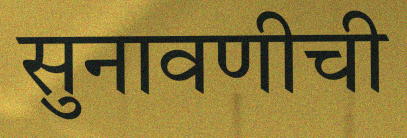
सुनावणीची